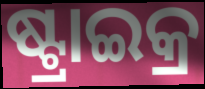
ଷ୍ଟ୍ରାଇକ୍ର